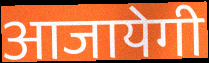
आजायेगी